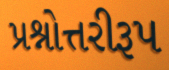
પ્રશ્નોત્તરીરૂપ